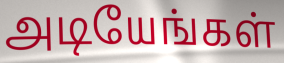
அடியேங்கள்